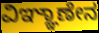
ವಿಞ್ಞಾಣೇನ